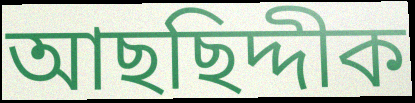
আছছিদ্দীক